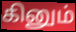
கினும்